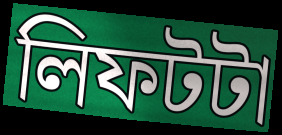
লিফটটা